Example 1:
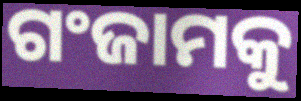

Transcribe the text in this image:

ଗଂଜାମକୁ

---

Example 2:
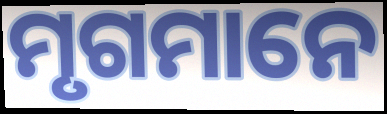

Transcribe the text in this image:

ମୃଗମାନେ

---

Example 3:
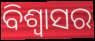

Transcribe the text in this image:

ବିଶ୍ୱାସର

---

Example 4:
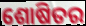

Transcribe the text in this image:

ଶୋଷିତର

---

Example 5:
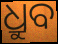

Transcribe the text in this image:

ଧ୍ରୁବ